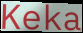
Keka